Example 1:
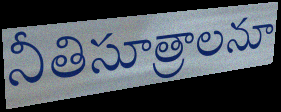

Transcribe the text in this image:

నీతిసూత్రాలనూ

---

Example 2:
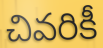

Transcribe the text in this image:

చివరికీ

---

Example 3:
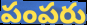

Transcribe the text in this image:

పంపరు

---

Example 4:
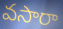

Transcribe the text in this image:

వసారా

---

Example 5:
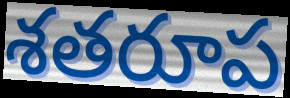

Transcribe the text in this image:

శతరూప